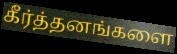
கீர்த்தனங்களை